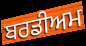
ਬਰਡੀਅਮ